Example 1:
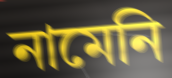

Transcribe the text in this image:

নামেনি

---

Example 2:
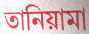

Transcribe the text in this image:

তানিয়ামা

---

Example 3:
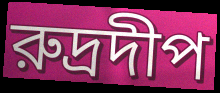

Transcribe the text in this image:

রুদ্রদীপ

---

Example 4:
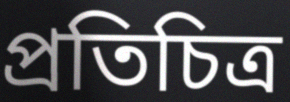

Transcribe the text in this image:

প্রতিচিত্র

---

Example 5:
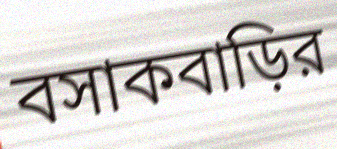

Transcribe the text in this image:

বসাকবাড়ির